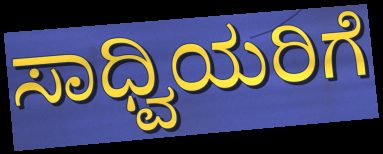
ಸಾಧ್ವಿಯರಿಗೆ